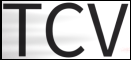
TCV